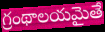
గ్రంథాలయమైతే